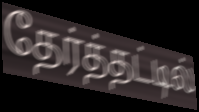
தேர்த்தட்டில்